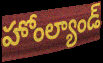
హోంల్యాండ్